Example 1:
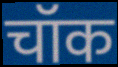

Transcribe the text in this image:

चॉक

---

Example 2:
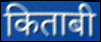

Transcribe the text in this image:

किताबी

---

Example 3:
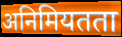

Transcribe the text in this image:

अनिमियतता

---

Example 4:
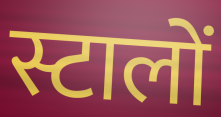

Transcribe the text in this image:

स्टालों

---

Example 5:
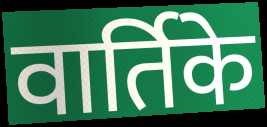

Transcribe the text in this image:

वार्तिके